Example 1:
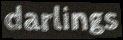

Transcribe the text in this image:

darlings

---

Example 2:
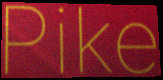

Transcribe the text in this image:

Pike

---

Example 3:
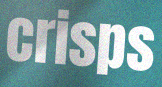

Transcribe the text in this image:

crisps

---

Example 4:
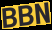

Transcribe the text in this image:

BBN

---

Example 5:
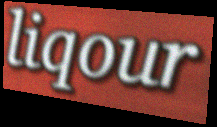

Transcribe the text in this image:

liqour